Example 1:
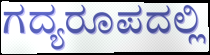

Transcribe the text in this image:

ಗದ್ಯರೂಪದಲ್ಲಿ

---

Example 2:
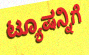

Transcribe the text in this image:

ಟ್ಯೂಷನ್ನಿಗೆ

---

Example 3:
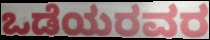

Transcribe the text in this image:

ಒಡೆಯರವರ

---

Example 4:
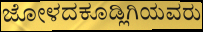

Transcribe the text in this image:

ಜೋಳದಕೂಡ್ಲಿಗಿಯವರು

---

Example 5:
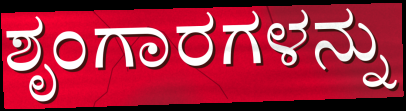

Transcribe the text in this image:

ಶೃಂಗಾರಗಳನ್ನು